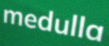
medulla